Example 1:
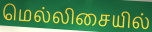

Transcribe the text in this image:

மெல்லிசையில்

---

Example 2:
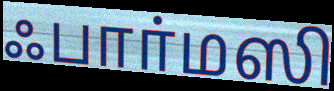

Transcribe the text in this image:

ஃபார்மஸி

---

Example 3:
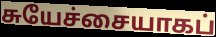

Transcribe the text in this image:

சுயேச்சையாகப்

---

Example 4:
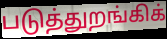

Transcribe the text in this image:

படுத்துறங்கிக்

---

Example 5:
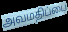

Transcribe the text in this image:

அவமதிப்பை